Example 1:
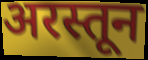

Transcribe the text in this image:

अरस्तून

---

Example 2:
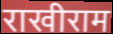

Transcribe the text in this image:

राखीराम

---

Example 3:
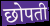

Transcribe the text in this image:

छोपती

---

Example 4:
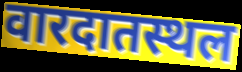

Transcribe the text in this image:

वारदातस्थल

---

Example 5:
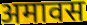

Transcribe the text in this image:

अमावस